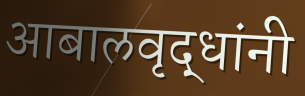
आबालवृद्धांनी